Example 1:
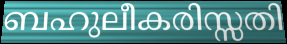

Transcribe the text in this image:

ബഹുലീകരിസ്സതി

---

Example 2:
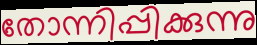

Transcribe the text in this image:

തോന്നിപ്പിക്കുന്നു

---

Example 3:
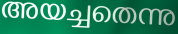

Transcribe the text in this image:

അയച്ചതെന്നു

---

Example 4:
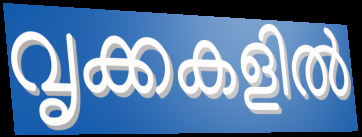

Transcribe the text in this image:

വൃക്കകളിൽ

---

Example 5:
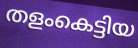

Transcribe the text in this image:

തളംകെട്ടിയ